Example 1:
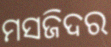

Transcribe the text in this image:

ମସଜିଦର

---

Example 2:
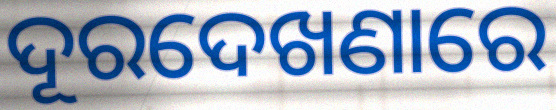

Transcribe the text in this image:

ଦୂରଦେଖଣାରେ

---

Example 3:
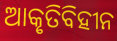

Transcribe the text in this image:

ଆକୃତିବିହୀନ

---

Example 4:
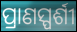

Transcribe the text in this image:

ପ୍ରାଣସ୍ପର୍ଶୀ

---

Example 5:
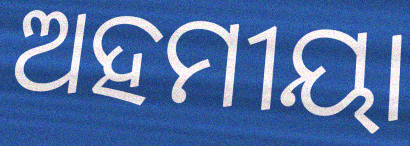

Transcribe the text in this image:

ଅହମୀୟା